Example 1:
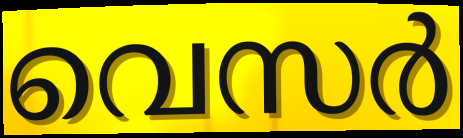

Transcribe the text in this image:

വെസർ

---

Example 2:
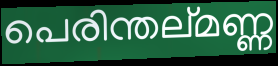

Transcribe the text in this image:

പെരിന്തല്മണ്ണ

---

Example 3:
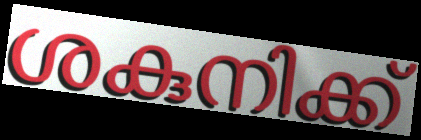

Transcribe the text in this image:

ശകുനിക്ക്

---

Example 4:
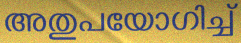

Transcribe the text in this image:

അതുപയോഗിച്ച്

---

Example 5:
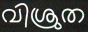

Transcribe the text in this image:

വിശ്രുത